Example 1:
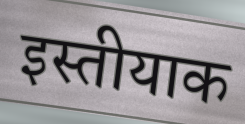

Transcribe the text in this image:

इस्तीयाक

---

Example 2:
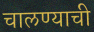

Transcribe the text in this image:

चालण्याची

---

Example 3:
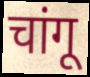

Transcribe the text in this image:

चांगू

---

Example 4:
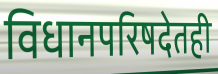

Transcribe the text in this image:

विधानपरिषदेतही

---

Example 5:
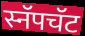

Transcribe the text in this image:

स्नॅपचॅट